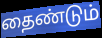
தைண்டும்